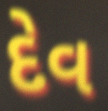
દેવ